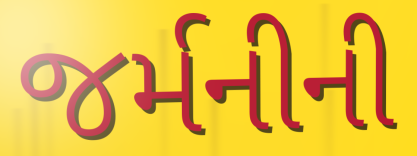
જર્મનીની